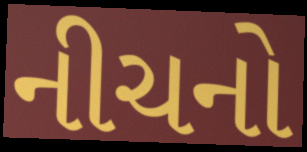
નીચનો